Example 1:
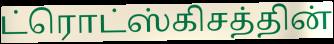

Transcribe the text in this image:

ட்ரொட்ஸ்கிசத்தின்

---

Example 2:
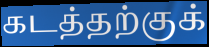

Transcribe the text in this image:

கடத்தற்குக்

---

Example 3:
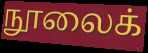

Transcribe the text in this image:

நூலைக்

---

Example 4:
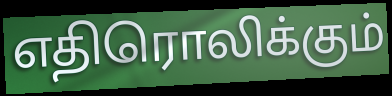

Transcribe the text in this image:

எதிரொலிக்கும்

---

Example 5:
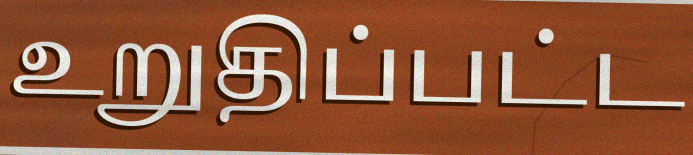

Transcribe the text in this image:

உறுதிப்பட்ட